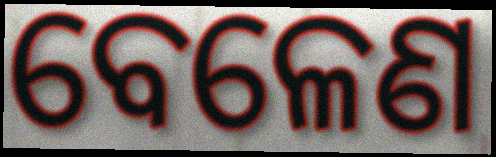
ବେଳେଣ